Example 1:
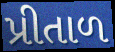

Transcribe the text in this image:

પ્રીતાળ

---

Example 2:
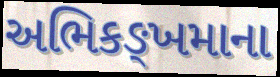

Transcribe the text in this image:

અભિકઙ્ખમાના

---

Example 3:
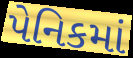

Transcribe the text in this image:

પેનિકમાં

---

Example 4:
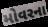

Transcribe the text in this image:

મોવરના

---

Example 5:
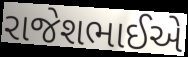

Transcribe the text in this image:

રાજેશભાઈએ